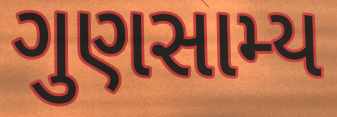
ગુણસામ્ય